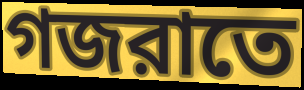
গজরাতে